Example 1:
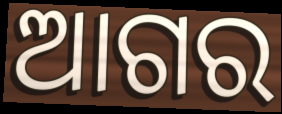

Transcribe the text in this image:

ଆଗର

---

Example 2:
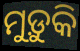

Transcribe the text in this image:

ମୁଡ଼ୁକି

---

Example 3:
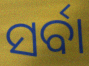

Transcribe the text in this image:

ସର୍ବା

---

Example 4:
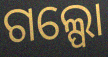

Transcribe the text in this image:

ଗଲ୍ପୋ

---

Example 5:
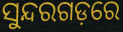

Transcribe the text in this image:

ସୁନ୍ଦରଗଡ଼ରେ